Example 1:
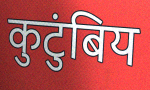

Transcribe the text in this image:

कुटुंबिय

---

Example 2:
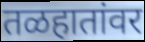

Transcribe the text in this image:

तळहातांवर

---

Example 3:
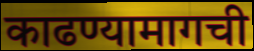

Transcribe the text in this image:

काढण्यामागची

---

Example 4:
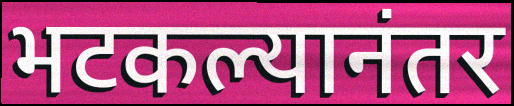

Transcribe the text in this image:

भटकल्यानंतर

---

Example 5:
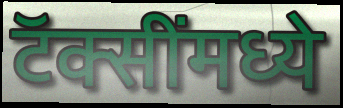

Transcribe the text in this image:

टॅक्सींमध्ये